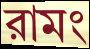
রামং